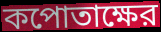
কপোতাক্ষের